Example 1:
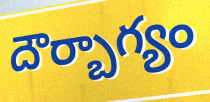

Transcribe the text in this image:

దౌర్బాగ్యం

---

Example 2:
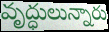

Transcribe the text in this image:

వృద్ధులున్నారు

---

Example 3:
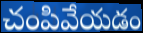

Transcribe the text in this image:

చంపివేయడం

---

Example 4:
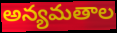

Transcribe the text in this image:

అన్యమతాల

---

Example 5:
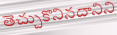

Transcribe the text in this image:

తెచ్చుకొనినదానిని